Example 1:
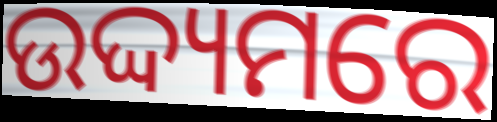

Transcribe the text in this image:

ଉଦ୍ଦ୍ୟମରେ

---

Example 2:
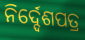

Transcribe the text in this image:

ନିର୍ଦ୍ଦେଶପତ୍ର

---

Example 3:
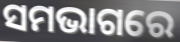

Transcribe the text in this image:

ସମଭାଗରେ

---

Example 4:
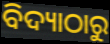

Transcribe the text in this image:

ବିଦ୍ୟାଠାରୁ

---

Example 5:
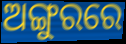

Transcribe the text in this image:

ଅଙ୍ଗୁରରେ